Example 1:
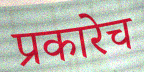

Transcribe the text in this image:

प्रकारेच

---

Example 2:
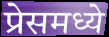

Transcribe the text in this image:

प्रेसमध्ये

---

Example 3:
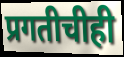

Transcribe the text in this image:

प्रगतीचीही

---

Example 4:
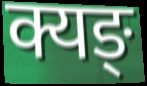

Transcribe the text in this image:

क्यङ्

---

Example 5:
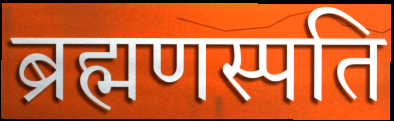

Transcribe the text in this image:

ब्रह्मणस्पति